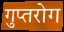
गुप्तरोग